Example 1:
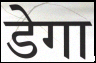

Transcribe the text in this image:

डेगा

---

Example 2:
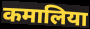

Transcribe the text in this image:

कमालिया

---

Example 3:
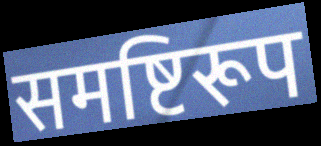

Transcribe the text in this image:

समष्टिरूप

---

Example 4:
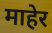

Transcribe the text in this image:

माहेर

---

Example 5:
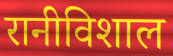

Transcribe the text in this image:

रानीविशाल